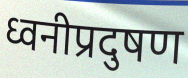
ध्वनीप्रदुषण